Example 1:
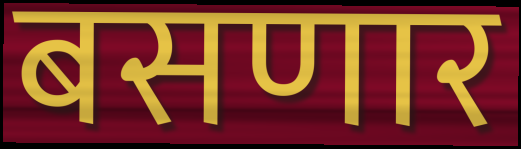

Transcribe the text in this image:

बसणार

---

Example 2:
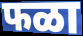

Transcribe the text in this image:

फळा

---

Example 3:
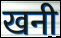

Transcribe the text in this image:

खनी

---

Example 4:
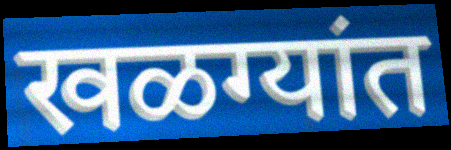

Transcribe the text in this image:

खळग्यांत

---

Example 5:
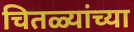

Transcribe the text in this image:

चितळ्यांच्या